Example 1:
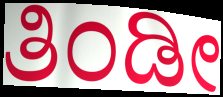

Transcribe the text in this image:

ತಿಂಡೀ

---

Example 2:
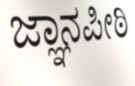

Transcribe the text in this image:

ಜ್ಞಾನಪೀಠಿ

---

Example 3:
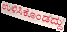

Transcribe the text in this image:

ಉಳಿಸಿಕೊಂಡದ್ದು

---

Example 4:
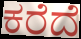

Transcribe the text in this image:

ಕರೆದೆ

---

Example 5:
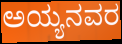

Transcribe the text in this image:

ಅಯ್ಯನವರ